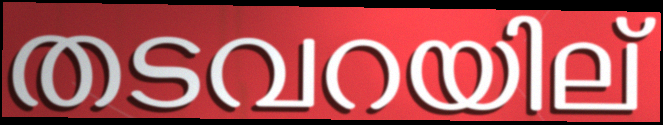
തടവറയില്